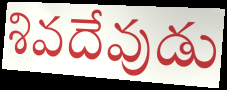
శివదేవుడు